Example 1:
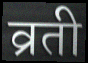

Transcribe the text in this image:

व्रती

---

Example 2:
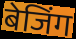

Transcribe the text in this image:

बेजिंग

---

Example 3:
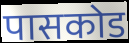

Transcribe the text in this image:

पासकोड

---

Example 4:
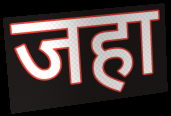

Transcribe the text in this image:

जहा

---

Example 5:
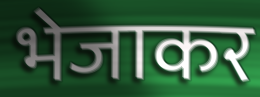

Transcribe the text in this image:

भेजाकर